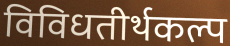
विविधतीर्थकल्प